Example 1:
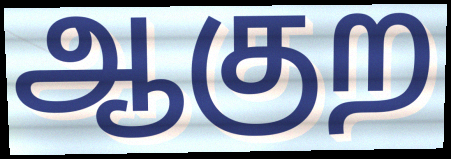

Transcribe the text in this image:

ஆகுற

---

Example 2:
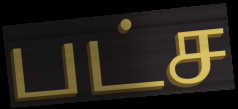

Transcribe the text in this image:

பட்ச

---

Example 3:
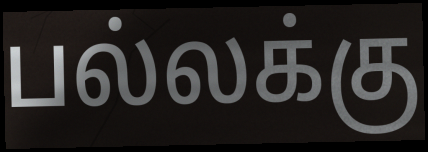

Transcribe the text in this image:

பல்லக்கு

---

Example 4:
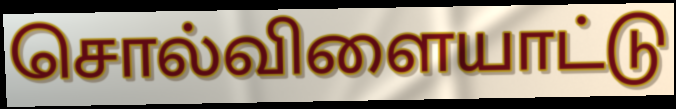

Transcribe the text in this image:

சொல்விளையாட்டு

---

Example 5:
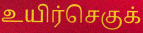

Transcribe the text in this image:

உயிர்செகுக்